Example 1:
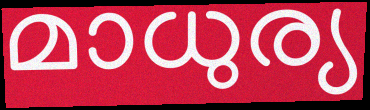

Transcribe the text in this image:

മാധുര്യ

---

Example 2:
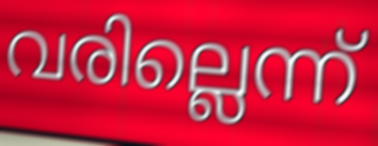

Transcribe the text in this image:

വരില്ലെന്ന്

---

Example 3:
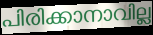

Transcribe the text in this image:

പിരിക്കാനാവില്ല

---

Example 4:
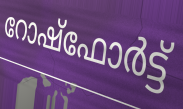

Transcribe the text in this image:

റോഷ്ഫോർട്ട്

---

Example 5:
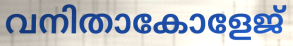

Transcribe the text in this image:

വനിതാകോളേജ്